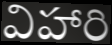
విహారి